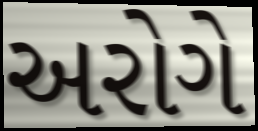
અરોગે